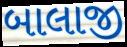
બાલાજી